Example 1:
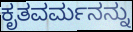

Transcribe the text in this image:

ಕೃತವರ್ಮನನ್ನು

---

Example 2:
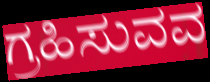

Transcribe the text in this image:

ಗ್ರಹಿಸುವವ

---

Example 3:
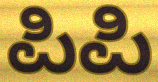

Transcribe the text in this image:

ಪಿಪಿ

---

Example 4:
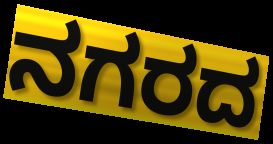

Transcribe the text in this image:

ನಗರದ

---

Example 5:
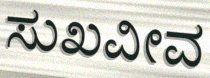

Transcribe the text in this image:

ಸುಖವೀವ